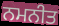
ਨਮਨੀਤ